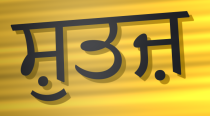
ਸ਼ੁਤਜ਼